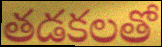
తడకలతో